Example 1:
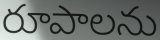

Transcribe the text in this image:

రూపాలను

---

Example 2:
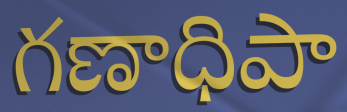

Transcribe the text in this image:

గణాధిపా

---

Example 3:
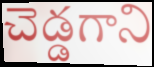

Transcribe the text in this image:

చెడ్డగాని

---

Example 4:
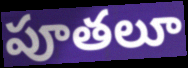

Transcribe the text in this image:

పూతలూ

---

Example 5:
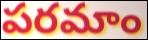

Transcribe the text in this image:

పరమాం